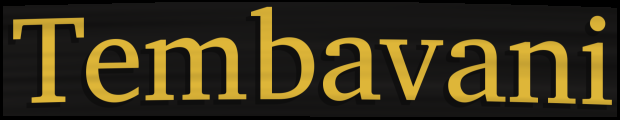
Tembavani